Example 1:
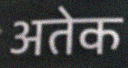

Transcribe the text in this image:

अतेक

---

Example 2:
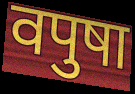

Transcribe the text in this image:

वपुषा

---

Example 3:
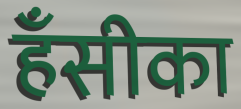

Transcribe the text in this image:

हँसीका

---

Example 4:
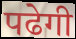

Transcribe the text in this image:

पढेगी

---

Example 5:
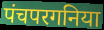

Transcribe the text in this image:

पंचपरगनिया